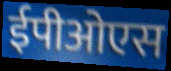
ईपीओएस